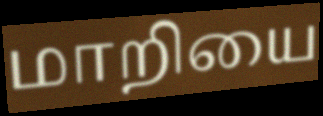
மாறியை